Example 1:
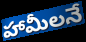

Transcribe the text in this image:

హామీలనే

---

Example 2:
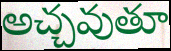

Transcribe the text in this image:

అచ్చవుతూ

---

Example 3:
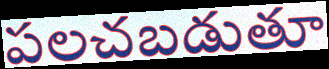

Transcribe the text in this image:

పలచబడుతూ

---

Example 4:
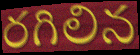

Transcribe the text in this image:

రగిలిన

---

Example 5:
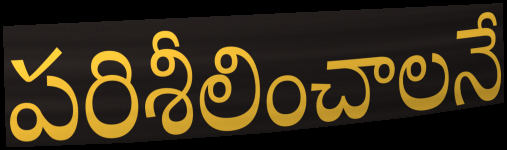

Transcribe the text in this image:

పరిశీలించాలనే